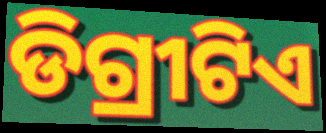
ଡିଗ୍ରୀଟିଏ